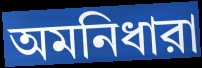
অমনিধারা